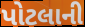
પોટલાની